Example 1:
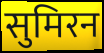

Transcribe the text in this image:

सुमिरन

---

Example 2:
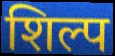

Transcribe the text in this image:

शिल्‍प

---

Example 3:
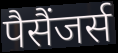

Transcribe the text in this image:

पैसैंजर्स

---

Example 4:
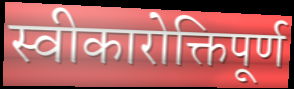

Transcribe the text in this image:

स्वीकारोक्तिपूर्ण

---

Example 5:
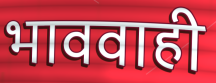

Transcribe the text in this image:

भाववाही